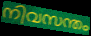
നിവസന്തം